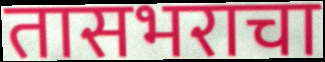
तासभराचा